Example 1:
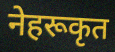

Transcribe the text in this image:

नेहरूकृत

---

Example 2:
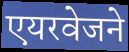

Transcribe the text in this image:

एयरवेजने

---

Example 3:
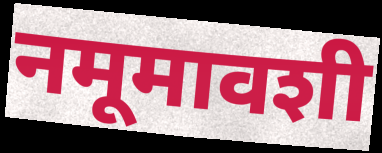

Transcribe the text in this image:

नमूमावशी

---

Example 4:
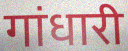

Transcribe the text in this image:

गांधारी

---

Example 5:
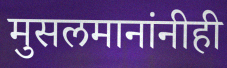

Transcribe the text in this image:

मुसलमानांनीही